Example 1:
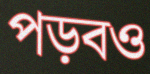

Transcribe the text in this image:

পড়বও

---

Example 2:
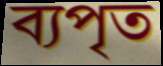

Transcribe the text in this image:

ব্যপৃত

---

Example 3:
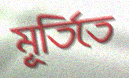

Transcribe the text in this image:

মূর্তিতে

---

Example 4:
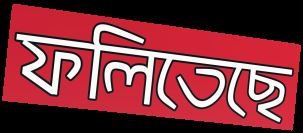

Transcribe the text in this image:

ফলিতেছে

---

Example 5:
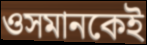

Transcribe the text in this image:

ওসমানকেই